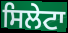
ਸਿਲੇਟਾ